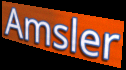
Amsler